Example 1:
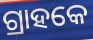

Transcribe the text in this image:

ଗ୍ରାହକେ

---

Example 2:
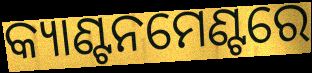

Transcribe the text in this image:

କ୍ୟାଣ୍ଟନମେଣ୍ଟରେ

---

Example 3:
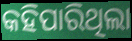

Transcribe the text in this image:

କହିପାରିଥିଲା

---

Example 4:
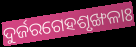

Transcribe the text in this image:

ଦୁର୍ଜରଗେହଶୃଙ୍ଖଳାଃ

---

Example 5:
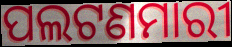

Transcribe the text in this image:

ପଲଟଣମାରୀ